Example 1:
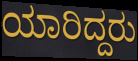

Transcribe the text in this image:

ಯಾರಿದ್ದರು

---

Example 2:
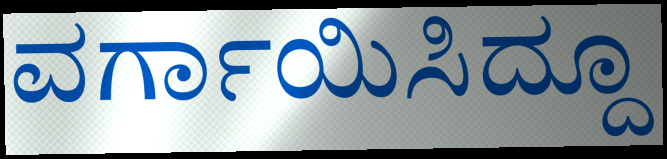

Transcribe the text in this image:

ವರ್ಗಾಯಿಸಿದ್ದೂ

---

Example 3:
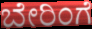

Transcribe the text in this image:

ಬೇರಿಂಗೆ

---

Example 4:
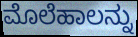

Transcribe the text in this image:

ಮೊಲೆಹಾಲನ್ನು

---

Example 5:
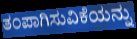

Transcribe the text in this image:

ತಂಪಾಗಿಸುವಿಕೆಯನ್ನು